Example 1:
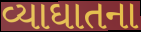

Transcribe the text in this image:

વ્યાઘાતના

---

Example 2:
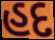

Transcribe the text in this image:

હદ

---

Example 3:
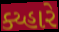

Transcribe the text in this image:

ક્ય્હારે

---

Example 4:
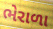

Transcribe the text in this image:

ભેરાળા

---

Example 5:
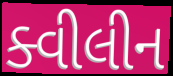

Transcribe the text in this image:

ક્વીલીન